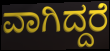
ವಾಗಿದ್ದರೆ